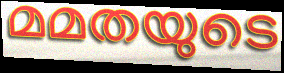
മമതയുടെ